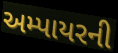
અમ્પાયરની